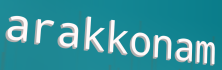
arakkonam